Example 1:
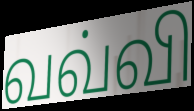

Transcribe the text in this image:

வவ்வி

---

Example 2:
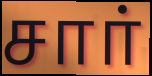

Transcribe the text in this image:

சார்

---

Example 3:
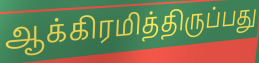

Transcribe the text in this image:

ஆக்கிரமித்திருப்பது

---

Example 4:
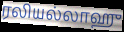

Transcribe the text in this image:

ரலியல்லாஹு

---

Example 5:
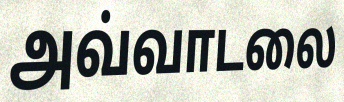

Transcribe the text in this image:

அவ்வாடலை